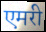
एमरी